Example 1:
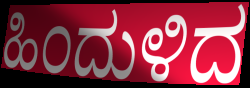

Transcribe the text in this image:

ಹಿಂದುಳಿದ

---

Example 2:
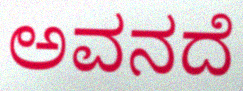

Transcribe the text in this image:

ಅವನದೆ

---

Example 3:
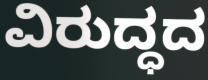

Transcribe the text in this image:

ವಿರುದ್ಧದ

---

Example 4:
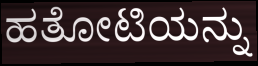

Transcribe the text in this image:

ಹತೋಟಿಯನ್ನು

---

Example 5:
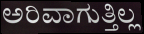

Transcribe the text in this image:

ಅರಿವಾಗುತ್ತಿಲ್ಲ